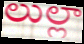
లుల్లా